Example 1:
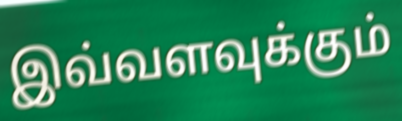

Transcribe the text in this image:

இவ்வளவுக்கும்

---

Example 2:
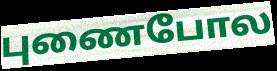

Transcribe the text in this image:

புணைபோல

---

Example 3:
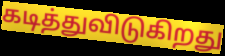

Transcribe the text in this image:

கடித்துவிடுகிறது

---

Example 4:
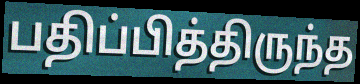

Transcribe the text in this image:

பதிப்பித்திருந்த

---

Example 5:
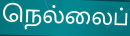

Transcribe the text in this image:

நெல்லைப்